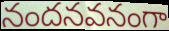
నందనవనంగా